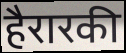
हैरारकी